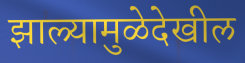
झाल्यामुळेदेखील